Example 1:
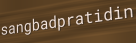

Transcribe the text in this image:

sangbadpratidin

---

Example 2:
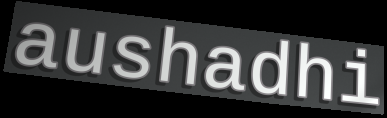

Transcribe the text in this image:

aushadhi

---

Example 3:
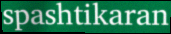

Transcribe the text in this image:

spashtikaran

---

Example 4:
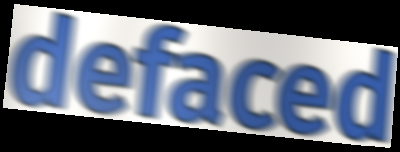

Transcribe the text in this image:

defaced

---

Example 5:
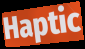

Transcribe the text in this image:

Haptic